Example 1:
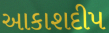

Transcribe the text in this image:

આકાશદીપ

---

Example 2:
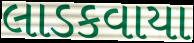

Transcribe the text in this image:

લાડકવાયા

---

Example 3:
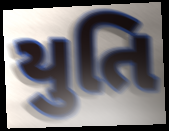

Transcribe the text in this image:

યુતિ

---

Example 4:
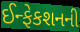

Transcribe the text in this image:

ઈન્ફેકશનની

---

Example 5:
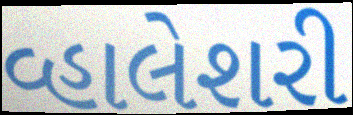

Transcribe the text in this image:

વ્હાલેશરી